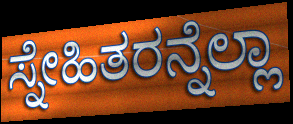
ಸ್ನೇಹಿತರನ್ನೆಲ್ಲಾ